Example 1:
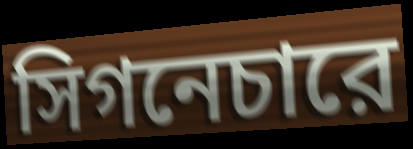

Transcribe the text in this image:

সিগনেচারে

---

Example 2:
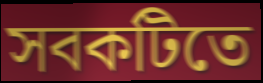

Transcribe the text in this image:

সবকটিতে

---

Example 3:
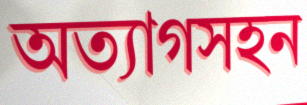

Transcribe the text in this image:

অত্যাগসহন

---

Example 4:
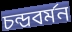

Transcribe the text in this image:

চন্দ্রবর্মন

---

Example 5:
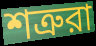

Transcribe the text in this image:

শত্রুরা